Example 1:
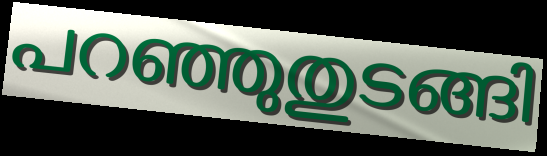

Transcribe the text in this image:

പറഞ്ഞുതുടങ്ങി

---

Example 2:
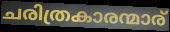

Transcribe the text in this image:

ചരിത്രകാരന്മാര്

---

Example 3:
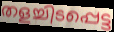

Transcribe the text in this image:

തളച്ചിടപ്പെട്ട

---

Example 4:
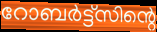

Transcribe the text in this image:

റോബർട്ട്സിന്റെ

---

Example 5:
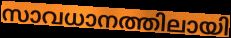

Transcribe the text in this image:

സാവധാനത്തിലായി